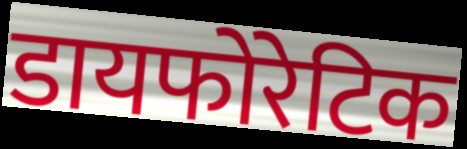
डायफोरेटिक